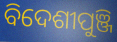
ବିଦେଶୀପୁଞ୍ଜି